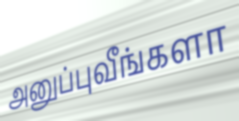
அனுப்புவீங்களா